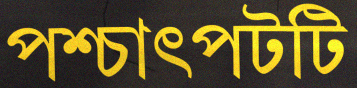
পশ্চাৎপটটি